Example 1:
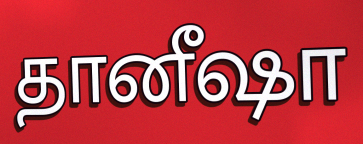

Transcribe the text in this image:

தானீஷா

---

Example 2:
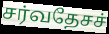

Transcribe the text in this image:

சர்வதேசச்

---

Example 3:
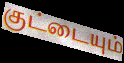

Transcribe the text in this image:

குட்டையும்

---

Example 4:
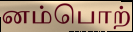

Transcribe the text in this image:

னம்பொற்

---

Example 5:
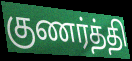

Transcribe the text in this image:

குணர்த்தி